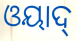
ଓୟାଦ୍